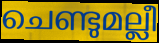
ചെണ്ടുമല്ലീ